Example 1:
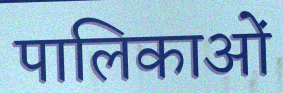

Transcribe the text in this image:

पालिकाओं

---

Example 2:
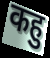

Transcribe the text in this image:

कहु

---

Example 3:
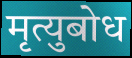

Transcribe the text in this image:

मृत्युबोध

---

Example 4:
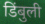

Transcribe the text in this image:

डिंबुली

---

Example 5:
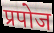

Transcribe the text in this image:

प्रपोज